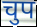
चुप